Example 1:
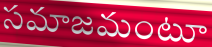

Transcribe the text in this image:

సమాజమంటూ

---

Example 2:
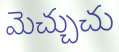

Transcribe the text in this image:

మెచ్చుచు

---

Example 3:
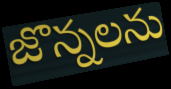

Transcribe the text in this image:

జొన్నలను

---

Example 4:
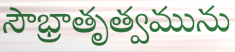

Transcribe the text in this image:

సౌభ్రాతృత్వమును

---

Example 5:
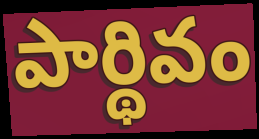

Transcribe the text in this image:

పార్థివం